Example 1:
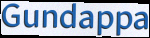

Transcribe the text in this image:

Gundappa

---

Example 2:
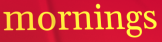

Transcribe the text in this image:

mornings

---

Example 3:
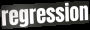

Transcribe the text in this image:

regression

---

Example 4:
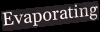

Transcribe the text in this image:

Evaporating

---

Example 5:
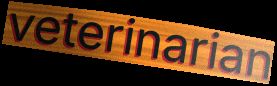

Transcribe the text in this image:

veterinarian